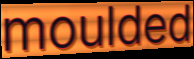
moulded